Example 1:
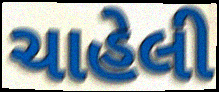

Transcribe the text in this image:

ચાહેલી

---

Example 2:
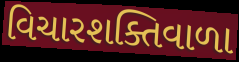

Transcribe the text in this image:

વિચારશક્તિવાળા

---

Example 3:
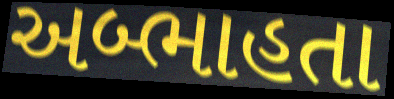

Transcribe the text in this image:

અબ્ભાહતા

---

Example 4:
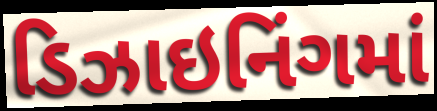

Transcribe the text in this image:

ડિઝાઇનિંગમાં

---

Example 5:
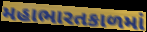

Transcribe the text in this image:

મહાભારતકાળમાં